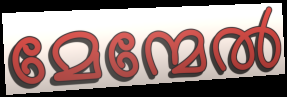
മേന്മേൽ